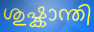
ശുഷ്കാന്തി